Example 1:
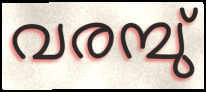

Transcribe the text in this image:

വരമ്പു്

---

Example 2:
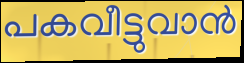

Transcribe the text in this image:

പകവീട്ടുവാൻ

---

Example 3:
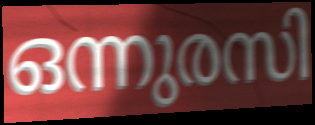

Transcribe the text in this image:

ഒന്നുരസി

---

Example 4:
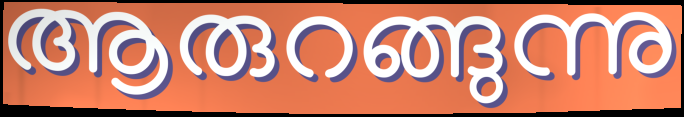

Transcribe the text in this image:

ആരുറങ്ങുന്നു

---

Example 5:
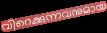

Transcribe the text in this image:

വിറെക്കുന്നവനുമായ